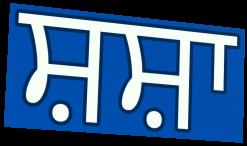
ਸ਼ਸ਼ਾ